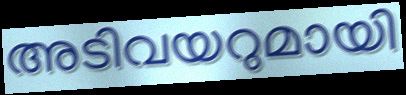
അടിവയറുമായി